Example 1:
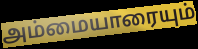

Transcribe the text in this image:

அம்மையாரையும்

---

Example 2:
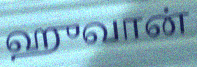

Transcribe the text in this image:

ஹுவான்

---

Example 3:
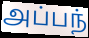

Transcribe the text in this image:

அப்பந்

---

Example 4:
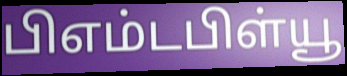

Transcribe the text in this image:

பிஎம்டபிள்யூ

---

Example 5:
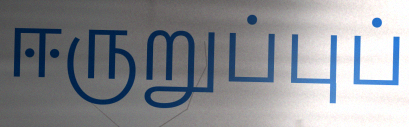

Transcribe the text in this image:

ஈருறுப்புப்